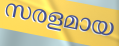
സരളമായ